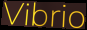
Vibrio